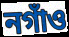
নগাঁও